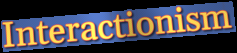
Interactionism